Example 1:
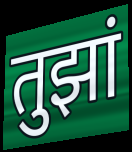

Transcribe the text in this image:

तुझां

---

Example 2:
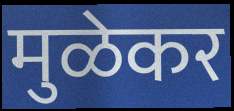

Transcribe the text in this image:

मुळेकर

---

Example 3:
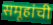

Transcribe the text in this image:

समूहांची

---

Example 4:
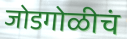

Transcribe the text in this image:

जोडगोळीचं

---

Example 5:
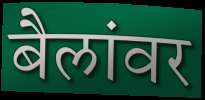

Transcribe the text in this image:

बैलांवर